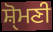
ਸ਼ੑੋਮਣੀ